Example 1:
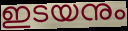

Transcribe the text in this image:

ഇടയനും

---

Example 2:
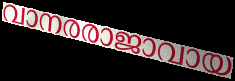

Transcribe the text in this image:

വാനരരാജാവായ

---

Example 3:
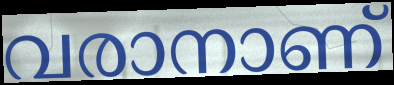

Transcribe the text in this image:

വരാനാണ്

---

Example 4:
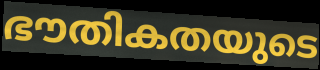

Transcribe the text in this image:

ഭൗതികതയുടെ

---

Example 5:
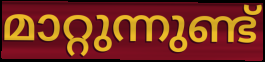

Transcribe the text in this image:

മാറ്റുന്നുണ്ട്